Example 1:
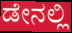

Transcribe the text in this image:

ಡೇನಲ್ಲಿ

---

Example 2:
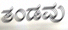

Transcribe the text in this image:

ತಂಡವು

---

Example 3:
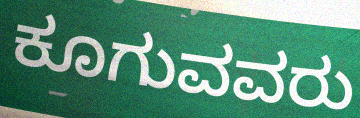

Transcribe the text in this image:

ಕೂಗುವವರು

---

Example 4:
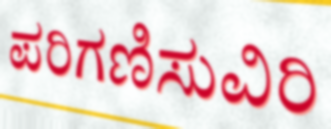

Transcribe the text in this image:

ಪರಿಗಣಿಸುವಿರಿ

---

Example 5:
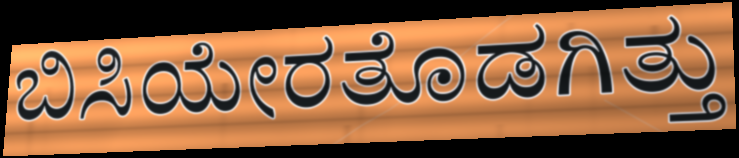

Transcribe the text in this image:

ಬಿಸಿಯೇರತೊಡಗಿತ್ತು